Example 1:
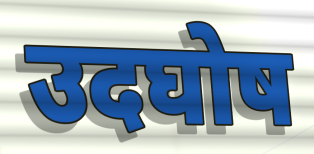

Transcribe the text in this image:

उदघोष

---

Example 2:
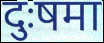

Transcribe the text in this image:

दुःषमा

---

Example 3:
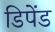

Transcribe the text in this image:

डिपेंड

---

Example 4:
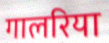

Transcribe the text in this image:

गालरिया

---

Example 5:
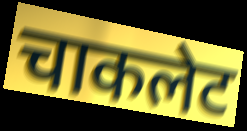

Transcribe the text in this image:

चाकलेट